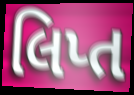
લિપ્ત